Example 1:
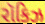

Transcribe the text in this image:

રૉકિઝ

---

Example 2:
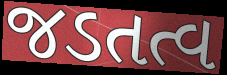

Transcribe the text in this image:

જડતત્વ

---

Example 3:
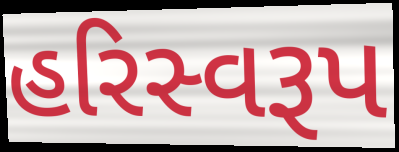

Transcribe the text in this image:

હરિસ્વરૂપ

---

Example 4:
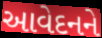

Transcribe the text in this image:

આવેદનને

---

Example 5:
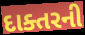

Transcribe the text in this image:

દાક્તરની